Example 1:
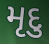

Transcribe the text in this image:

મૃદુ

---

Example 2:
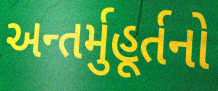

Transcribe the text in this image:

અન્તર્મુહૂર્તનો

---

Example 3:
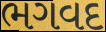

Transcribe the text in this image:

ભગવદ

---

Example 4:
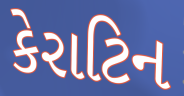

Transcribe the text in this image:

કેરાટિન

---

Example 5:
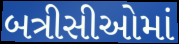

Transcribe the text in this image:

બત્રીસીઓમાં